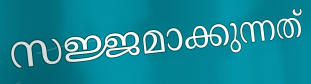
സജ്ജമാക്കുന്നത്